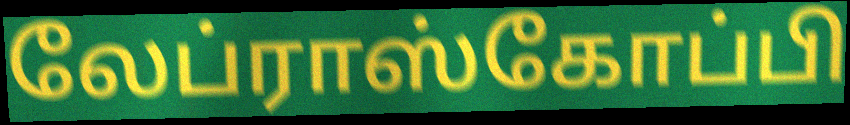
லேப்ராஸ்கோப்பி